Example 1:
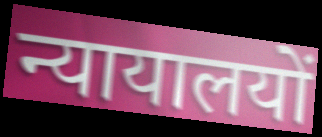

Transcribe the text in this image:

न्यायालयों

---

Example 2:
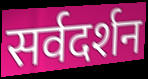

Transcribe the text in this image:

सर्वदर्शन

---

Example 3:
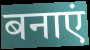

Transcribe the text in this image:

बनाएं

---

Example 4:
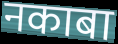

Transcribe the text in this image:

नकाबा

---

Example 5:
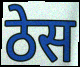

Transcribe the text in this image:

ठेस